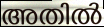
അതിൽ